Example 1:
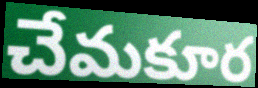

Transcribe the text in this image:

చేమకూర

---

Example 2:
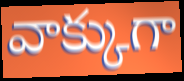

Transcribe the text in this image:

వాక్కుగా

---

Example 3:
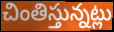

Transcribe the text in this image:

చింతిస్తున్నట్లు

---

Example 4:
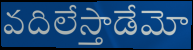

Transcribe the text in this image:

వదిలేస్తాడేమో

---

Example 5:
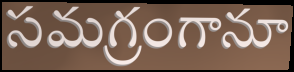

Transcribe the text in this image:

సమగ్రంగానూ